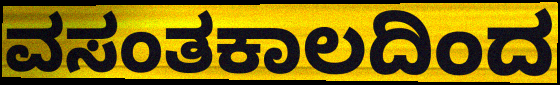
ವಸಂತಕಾಲದಿಂದ